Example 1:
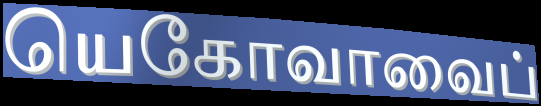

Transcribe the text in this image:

யெகோவாவைப்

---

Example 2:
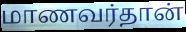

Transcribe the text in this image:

மாணவர்தான்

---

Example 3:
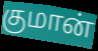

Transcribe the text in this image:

குமான்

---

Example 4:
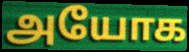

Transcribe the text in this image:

அயோக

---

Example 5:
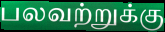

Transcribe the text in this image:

பலவற்றுக்கு